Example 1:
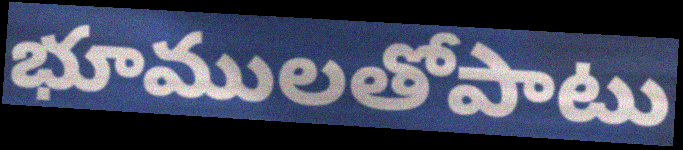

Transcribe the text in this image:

భూములతోపాటు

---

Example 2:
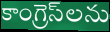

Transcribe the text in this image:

కాంగ్రెస్‌లను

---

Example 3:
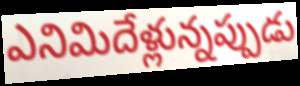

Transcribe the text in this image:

ఎనిమిదేళ్లున్నప్పుడు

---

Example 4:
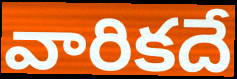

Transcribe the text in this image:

వారికదే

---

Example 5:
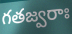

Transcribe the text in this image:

గతజ్వరాః